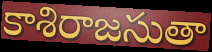
కాశిరాజసుతా